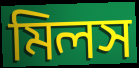
মিলস